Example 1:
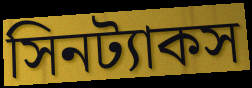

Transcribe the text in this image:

সিনট্যাকস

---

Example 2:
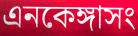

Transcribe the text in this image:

এনকেঙ্গাসং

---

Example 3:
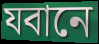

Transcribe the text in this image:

যবানে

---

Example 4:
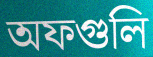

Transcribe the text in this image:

অফগুলি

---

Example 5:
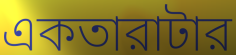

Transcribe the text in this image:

একতারাটার